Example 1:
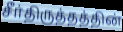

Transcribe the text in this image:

சீர்திருத்தத்தின்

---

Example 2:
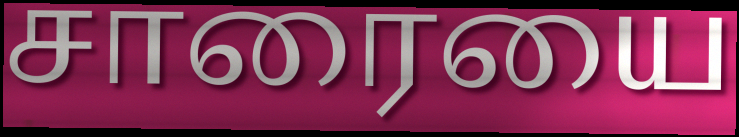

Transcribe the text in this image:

சாரையை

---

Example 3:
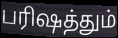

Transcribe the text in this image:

பரிஷத்தும்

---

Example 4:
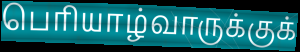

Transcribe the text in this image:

பெரியாழ்வாருக்குக்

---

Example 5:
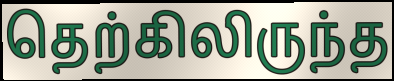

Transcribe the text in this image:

தெற்கிலிருந்த